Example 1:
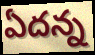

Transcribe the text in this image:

ఏదన్న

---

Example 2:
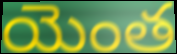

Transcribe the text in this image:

యెంత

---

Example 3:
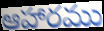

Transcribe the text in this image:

ఆహారము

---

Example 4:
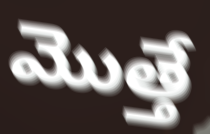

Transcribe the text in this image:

మొత్తే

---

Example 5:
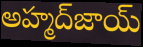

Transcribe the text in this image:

అహ్మద్‌జాయ్